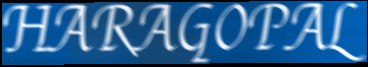
HARAGOPAL